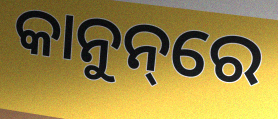
କାନୁନ୍‌ରେ